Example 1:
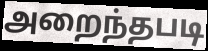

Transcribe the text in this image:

அறைந்தபடி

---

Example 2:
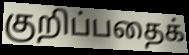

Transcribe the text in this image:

குறிப்பதைக்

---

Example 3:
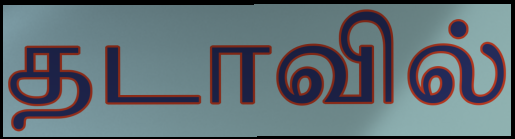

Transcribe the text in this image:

தடாவில்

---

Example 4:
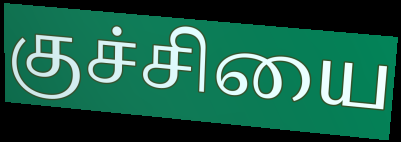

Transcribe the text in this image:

குச்சியை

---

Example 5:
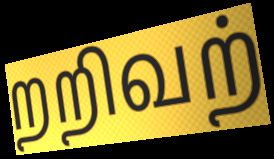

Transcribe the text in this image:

றறிவற்